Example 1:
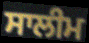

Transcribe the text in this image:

ਸਾਲੀਮ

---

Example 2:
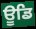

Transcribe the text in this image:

ਊਡਿ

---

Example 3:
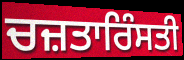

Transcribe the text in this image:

ਚਜ਼ਤਾਰਿੰਸਤੀ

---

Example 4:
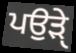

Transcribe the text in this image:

ਪਉੜੑੇ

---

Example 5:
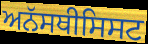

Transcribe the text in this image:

ਅਨੱਸਥੀਸਿਸਟ